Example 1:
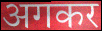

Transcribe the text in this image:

अगकर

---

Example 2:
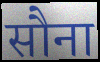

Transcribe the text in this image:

सौना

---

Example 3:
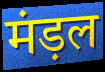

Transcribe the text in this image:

मंड़ल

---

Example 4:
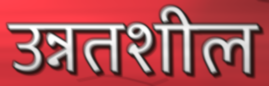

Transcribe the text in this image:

उन्नतशील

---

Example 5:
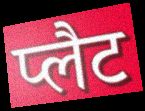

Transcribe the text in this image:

प्लैट